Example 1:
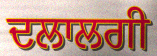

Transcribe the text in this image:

ਦਲਾਲਗੀ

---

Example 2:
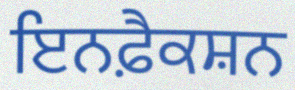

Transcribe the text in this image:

ਇਨਫ਼ੈਕਸ਼ਨ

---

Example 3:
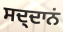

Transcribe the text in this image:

ਸਦ੍ਦਾਨਂ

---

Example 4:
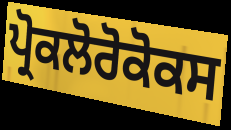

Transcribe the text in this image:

ਪ੍ਰੋਕਲੋਰੋਕੋਕਸ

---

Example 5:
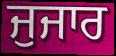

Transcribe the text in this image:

ਜੁਜਾਰ